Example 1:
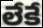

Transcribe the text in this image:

లేకే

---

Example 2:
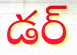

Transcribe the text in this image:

డర్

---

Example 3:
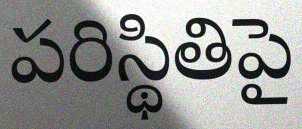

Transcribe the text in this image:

పరిస్థితిపై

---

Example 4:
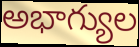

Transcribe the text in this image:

అభాగ్యుల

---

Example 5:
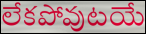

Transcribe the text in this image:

లేకపోవుటయే